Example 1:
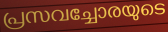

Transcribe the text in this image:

പ്രസവച്ചോരയുടെ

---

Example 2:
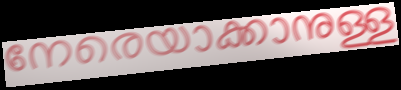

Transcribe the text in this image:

നേരെയാക്കാനുള്ള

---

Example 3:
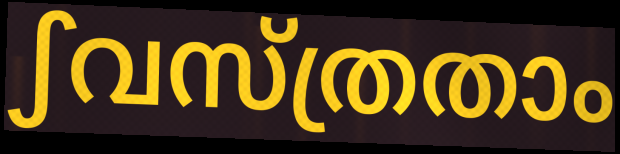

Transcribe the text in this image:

ഽവസ്ത്രതാം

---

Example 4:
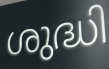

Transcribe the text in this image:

ശുദ്ധി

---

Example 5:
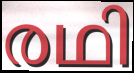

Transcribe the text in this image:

രഥി